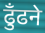
ढुँढने